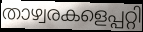
താഴ്വരകളെപ്പറ്റി